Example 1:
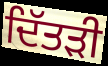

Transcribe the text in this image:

ਦਿੱਤੜੀ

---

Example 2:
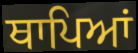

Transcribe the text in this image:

ਥਾਪਿਆਂ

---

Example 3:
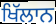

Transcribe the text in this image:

ਖਿੱਲਾਨ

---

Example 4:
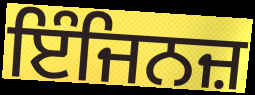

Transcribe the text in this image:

ਇੰਜਿਨਜ਼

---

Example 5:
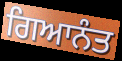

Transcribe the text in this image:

ਗਿਆਨੰਤ